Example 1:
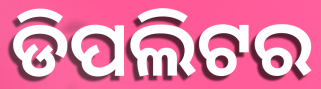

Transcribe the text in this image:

ଡିପଲିଟର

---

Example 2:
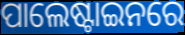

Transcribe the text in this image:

ପାଲେଷ୍ଟାଇନରେ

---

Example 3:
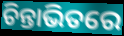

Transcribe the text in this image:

ଚିନ୍ତାଭିତରେ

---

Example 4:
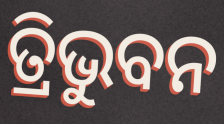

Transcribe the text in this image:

ତ୍ରିଭୁବନ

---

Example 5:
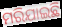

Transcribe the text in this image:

ମରିଯାଇଛି